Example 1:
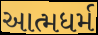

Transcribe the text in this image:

આત્મધર્મ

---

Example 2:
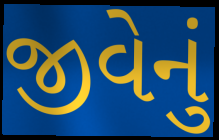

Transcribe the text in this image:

જીવેનું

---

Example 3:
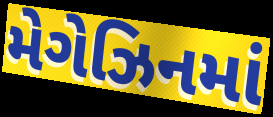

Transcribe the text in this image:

મેગેઝિનમાં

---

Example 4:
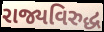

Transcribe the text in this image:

રાજ્યવિરુદ્ધ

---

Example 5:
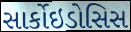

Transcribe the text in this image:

સાર્કોઇડોસિસ